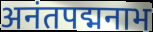
अनंतपद्मनाभ